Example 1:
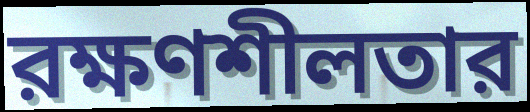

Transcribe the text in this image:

রক্ষণশীলতার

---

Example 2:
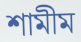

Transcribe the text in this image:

শামীম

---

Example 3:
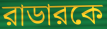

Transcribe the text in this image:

রাডারকে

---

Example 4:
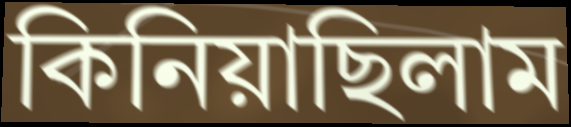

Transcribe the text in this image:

কিনিয়াছিলাম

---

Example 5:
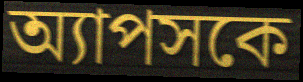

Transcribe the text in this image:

অ্যাপসকে